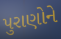
પુરાણોને